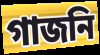
গাজনি